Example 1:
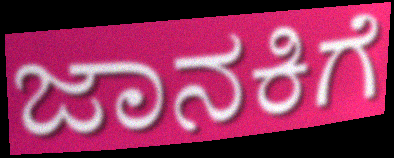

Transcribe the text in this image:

ಜಾನಕಿಗೆ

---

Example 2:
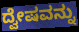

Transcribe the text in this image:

ದ್ವೇಷವನ್ನು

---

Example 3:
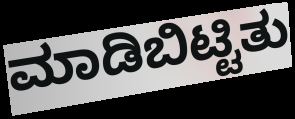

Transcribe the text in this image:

ಮಾಡಿಬಿಟ್ಟಿತು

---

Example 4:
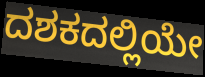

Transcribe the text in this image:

ದಶಕದಲ್ಲಿಯೇ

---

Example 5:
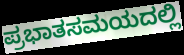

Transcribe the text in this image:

ಪ್ರಭಾತಸಮಯದಲ್ಲಿ